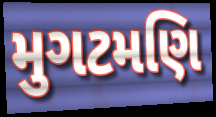
મુગટમણિ